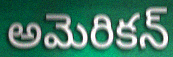
అమెరికన్